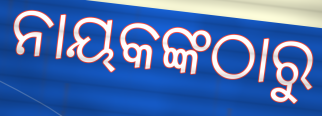
ନାୟକଙ୍କଠାରୁ